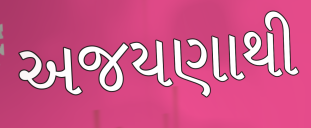
અજયણાથી